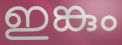
ഇങ്കും